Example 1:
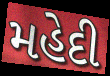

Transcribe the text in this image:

મહેદી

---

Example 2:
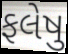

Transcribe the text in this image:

ફલેષુ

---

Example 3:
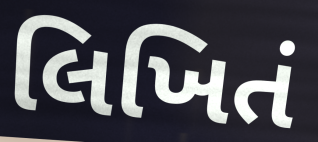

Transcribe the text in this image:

લિખિતં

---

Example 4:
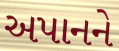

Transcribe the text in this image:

અપાનને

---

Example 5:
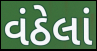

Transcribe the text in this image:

વંઠેલાં